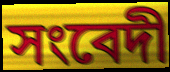
সংবেদী